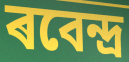
ৰবেন্দ্ৰ